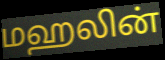
மஹலின்